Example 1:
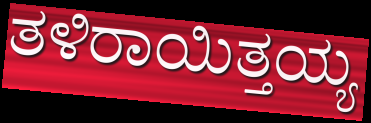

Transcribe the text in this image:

ತಳಿರಾಯಿತ್ತಯ್ಯ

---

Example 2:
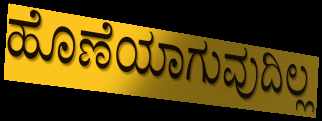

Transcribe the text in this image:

ಹೊಣೆಯಾಗುವುದಿಲ್ಲ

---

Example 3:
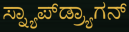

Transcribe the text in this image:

ಸ್ನ್ಯಾಪ್‌ಡ್ರ್ಯಾಗನ್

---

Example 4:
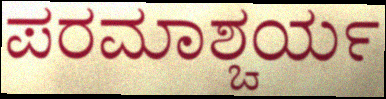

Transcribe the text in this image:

ಪರಮಾಶ್ಚರ್ಯ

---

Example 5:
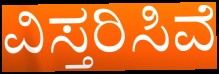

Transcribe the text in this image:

ವಿಸ್ತರಿಸಿವೆ